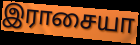
இராசையா